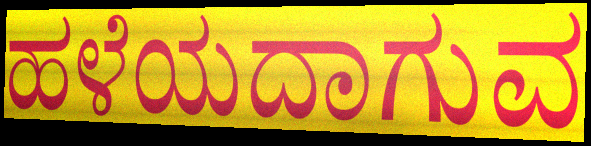
ಹಳೆಯದಾಗುವ